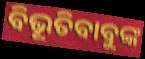
ବିଭୂତିବାବୁଙ୍କ